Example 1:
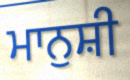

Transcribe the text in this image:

ਮਾਨੁਸ਼ੀ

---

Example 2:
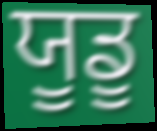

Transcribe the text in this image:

ਯੂਡੂ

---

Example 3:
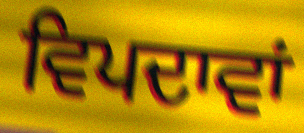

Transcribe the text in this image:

ਵਿਪਦਾਵਾਂ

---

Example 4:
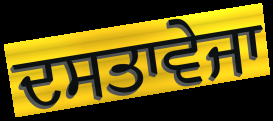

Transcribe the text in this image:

ਦਸਤਾਵੇਜਾ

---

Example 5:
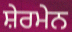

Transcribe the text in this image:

ਸ਼ੇਰਮੇਨ